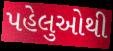
પહેલુઓથી